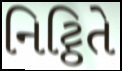
નિટ્ઠિતે